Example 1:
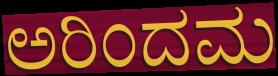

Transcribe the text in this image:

ಅರಿಂದಮ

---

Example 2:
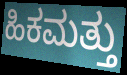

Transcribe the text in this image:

ಹಿಕಮತ್ತು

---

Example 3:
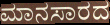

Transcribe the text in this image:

ಮಾನಸಾರದ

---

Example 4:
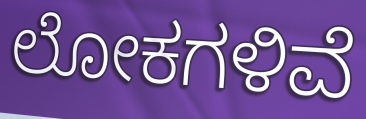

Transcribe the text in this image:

ಲೋಕಗಳಿವೆ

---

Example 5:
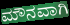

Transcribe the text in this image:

ಮೌನವಾಗಿ